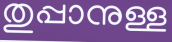
തുപ്പാനുള്ള